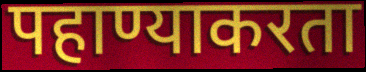
पहाण्याकरता